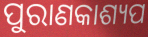
ପୁରାଣକାଶ୍ୟପ